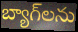
బ్యాగ్‌లను